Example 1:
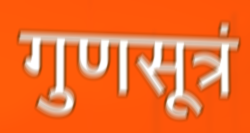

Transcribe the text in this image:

गुणसूत्रं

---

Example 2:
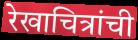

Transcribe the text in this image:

रेखाचित्रांची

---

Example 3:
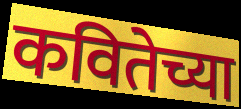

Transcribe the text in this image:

कवितेच्या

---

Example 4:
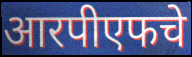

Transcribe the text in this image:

आरपीएफचे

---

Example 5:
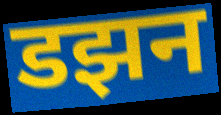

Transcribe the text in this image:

डझन